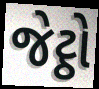
જેટ્ઠો